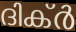
ദിക്ർ